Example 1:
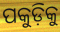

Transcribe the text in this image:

ପକୁଡ଼ିକୁ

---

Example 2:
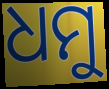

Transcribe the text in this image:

ଧମୁ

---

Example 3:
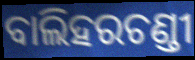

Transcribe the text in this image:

ବାଲିହରଚଣ୍ଡୀ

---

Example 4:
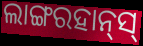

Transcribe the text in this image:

ଲାଙ୍ଗରହାନ୍‌ସ୍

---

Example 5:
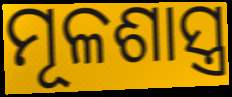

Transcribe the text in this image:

ମୂଳଶାସ୍ତ୍ର